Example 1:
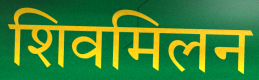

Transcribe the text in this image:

शिवमिलन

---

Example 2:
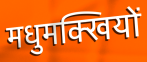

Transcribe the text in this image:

मधुमक्खियों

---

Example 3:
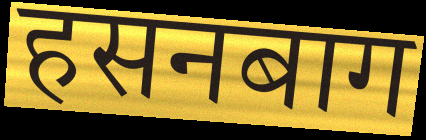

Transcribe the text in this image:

हसनबाग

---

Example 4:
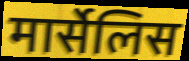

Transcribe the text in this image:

मार्सेलिस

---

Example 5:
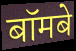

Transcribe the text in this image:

बॉमबे